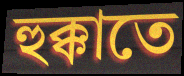
হুক্কাতে